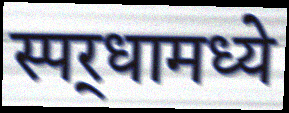
स्पर्धामध्ये